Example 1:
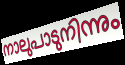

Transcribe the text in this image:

നാലുപാടുനിന്നും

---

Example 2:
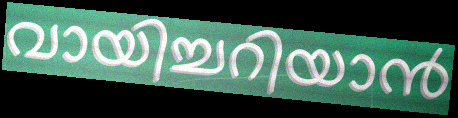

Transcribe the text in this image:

വായിച്ചറിയാൻ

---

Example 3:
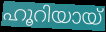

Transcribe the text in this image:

ഹൂറിയായ്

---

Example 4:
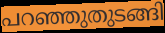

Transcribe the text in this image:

പറഞ്ഞുതുടങ്ങി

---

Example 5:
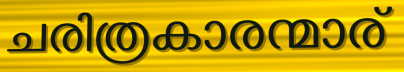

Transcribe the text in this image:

ചരിത്രകാരന്മാര്